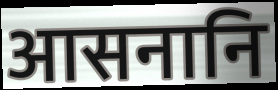
आसनानि